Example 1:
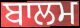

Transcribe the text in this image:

ਬਾਲਮ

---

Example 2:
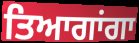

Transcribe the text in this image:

ਤਿਆਗਾਂਗਾ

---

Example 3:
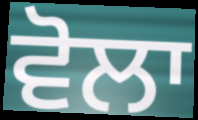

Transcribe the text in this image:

ਵੋਲਾ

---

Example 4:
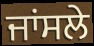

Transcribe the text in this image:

ਜਾਂਸਲੇ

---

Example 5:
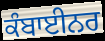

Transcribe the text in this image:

ਕੰਬਾਈਨਰ